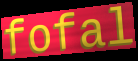
fofal